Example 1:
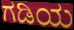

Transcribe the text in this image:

ಗಡಿಯ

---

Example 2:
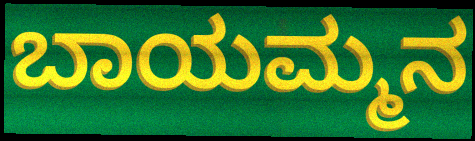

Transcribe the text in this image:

ಬಾಯಮ್ಮನ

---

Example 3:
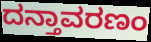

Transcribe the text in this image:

ದನ್ತಾವರಣಂ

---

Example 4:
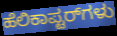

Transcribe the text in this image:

ಹೆಲಿಕಾಪ್ಟರ್‌ಗಳು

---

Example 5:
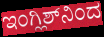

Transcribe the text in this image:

ಇಂಗ್ಲಿಶ್‌ನಿಂದ